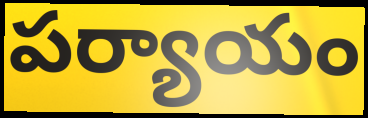
పర్యాయం